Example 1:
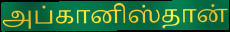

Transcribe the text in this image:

அப்கானிஸ்தான்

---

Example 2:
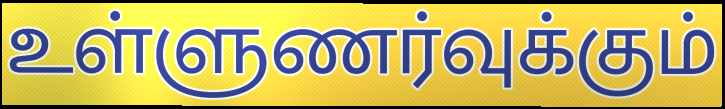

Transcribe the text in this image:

உள்ளுணர்வுக்கும்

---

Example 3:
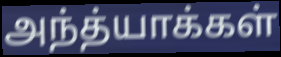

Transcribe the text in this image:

அந்த்யாக்கள்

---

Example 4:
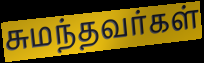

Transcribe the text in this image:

சுமந்தவர்கள்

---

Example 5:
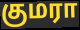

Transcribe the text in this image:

குமரா